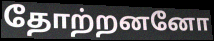
தோற்றனனோ